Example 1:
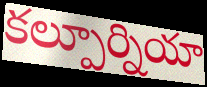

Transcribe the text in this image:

కల్పూర్నియా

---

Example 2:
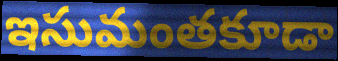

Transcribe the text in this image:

ఇసుమంతకూడా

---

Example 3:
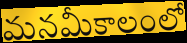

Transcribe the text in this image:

మనమీకాలంలో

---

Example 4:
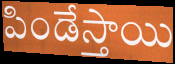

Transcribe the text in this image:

పిండేస్తాయి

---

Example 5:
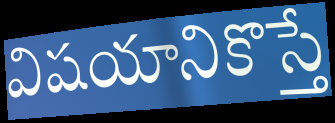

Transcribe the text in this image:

విషయానికొస్తే